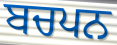
ਬਚਪਨ